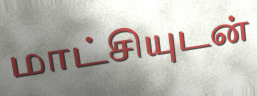
மாட்சியுடன்